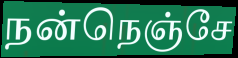
நன்நெஞ்சே